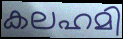
കലഹമി